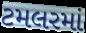
ટમલરમાં